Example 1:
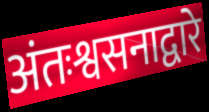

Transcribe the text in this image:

अंतःश्वसनाद्वारे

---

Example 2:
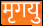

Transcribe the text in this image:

मृगयु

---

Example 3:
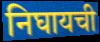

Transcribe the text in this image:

निघायची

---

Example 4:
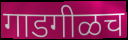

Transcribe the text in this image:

गाडगीळच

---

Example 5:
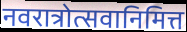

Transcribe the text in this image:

नवरात्रोत्सवानिमित्त